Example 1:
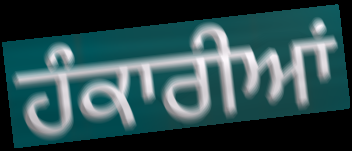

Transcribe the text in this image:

ਹੰਕਾਰੀਆਂ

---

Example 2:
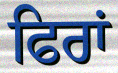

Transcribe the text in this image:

ਫਿਰਾਂ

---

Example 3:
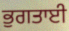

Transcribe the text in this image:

ਭੁਗਤਾਈ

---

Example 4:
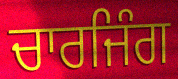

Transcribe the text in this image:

ਚਾਰਜਿੰਗ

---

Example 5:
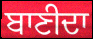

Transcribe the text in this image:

ਬਾਣੀਦਾ